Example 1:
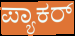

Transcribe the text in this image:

ಪ್ಯಾಕರ್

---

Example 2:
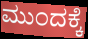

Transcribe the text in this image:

ಮುಂದಕ್ಕೆ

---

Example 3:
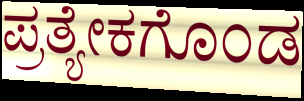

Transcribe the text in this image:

ಪ್ರತ್ಯೇಕಗೊಂಡ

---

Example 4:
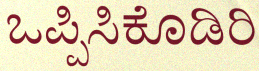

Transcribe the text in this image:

ಒಪ್ಪಿಸಿಕೊಡಿರಿ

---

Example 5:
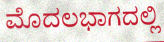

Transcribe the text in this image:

ಮೊದಲಭಾಗದಲ್ಲಿ